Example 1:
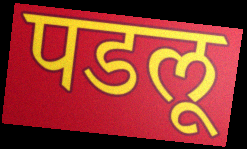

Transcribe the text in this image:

पडलू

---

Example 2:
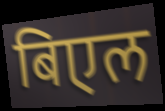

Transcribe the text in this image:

बिएल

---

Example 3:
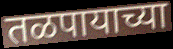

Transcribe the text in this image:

तळपायाच्या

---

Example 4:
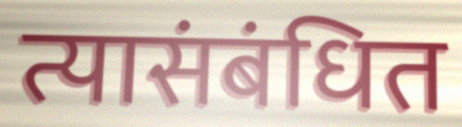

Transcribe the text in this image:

त्यासंबंधित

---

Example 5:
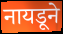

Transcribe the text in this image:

नायडूने